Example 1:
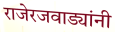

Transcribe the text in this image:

राजेरजवाड्यांनी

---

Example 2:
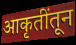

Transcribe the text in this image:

आकृतींतून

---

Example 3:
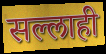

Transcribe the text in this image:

सल्लाही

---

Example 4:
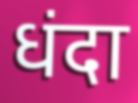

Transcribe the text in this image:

धंदा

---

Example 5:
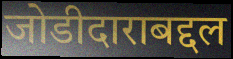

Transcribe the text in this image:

जोडीदाराबद्दल